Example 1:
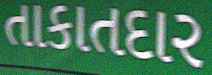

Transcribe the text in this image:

તાકાતદાર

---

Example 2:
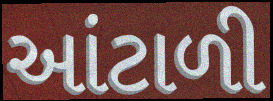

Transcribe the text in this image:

આંટાળી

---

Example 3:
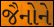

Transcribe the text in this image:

જૈનોને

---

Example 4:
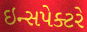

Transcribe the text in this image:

ઇન્સપેક્ટરે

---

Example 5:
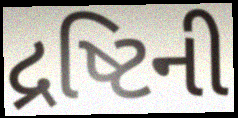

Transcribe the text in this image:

દ્રષ્ટિની